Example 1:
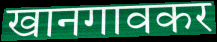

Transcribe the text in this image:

खानगावकर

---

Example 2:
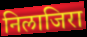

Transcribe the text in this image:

निलाजिरा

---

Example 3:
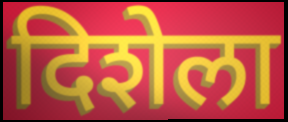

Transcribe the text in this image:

दिशेला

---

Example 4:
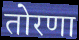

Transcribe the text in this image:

तोरणा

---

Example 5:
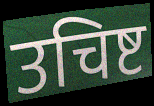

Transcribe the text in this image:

उचिष्ट